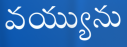
వయ్యును